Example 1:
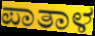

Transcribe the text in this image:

ಪಾತಾಳ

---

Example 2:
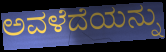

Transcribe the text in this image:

ಅವಳೆದೆಯನ್ನು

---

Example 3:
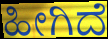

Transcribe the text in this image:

ಹೀಗಿದೆ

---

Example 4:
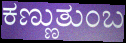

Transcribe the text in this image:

ಕಣ್ಣುತುಂಬ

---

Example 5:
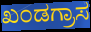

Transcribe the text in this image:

ಖಂಡಗ್ರಾಸ